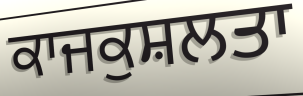
ਕਾਜਕੁਸ਼ਲਤਾ